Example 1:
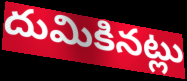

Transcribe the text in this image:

దుమికినట్లు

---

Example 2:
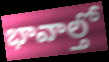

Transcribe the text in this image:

భావాల్తో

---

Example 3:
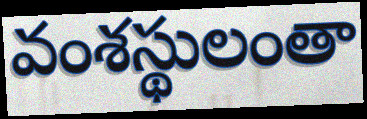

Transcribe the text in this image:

వంశస్థులంతా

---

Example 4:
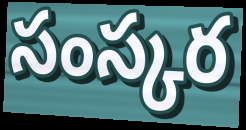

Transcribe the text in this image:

సంస్కర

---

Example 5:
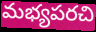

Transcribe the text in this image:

మభ్యపరచి